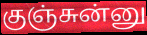
குஞ்சுன்னு